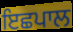
ਇਛਪਾਲ